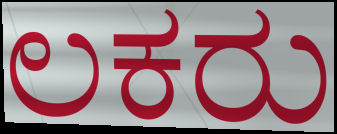
ಲಕರು